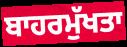
ਬਾਹਰਮੁੱਖਤਾ